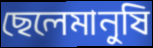
ছেলেমানুষি